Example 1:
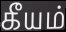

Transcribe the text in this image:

கீயம்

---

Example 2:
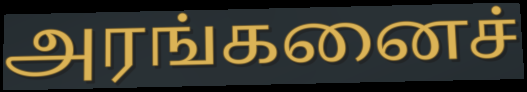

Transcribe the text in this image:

அரங்கனைச்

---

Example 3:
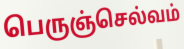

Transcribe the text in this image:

பெருஞ்செல்வம்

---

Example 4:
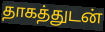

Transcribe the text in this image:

தாகத்துடன்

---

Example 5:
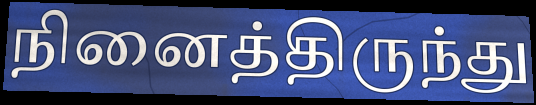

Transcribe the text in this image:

நினைத்திருந்து